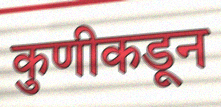
कुणीकडून